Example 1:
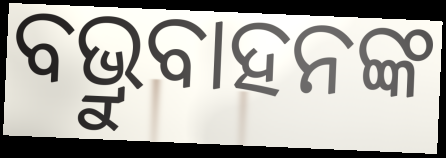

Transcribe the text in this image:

ବଭ୍ରୁବାହନଙ୍କ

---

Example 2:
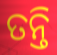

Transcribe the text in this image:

ତନ୍ତି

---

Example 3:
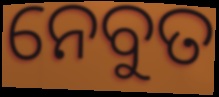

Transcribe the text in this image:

ନେବୁତ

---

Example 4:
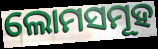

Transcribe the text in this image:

ଲୋମସମୂହ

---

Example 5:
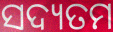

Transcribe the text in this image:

ସଦ୍ୟତମ